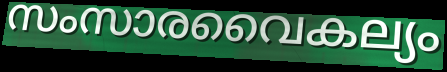
സംസാരവൈകല്യം